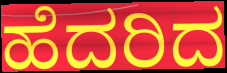
ಹೆದರಿದ